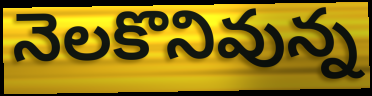
నెలకొనివున్న